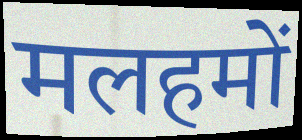
मलहमों